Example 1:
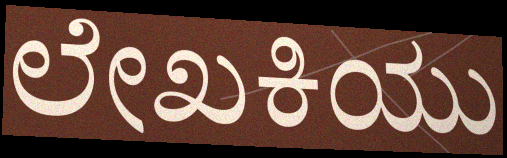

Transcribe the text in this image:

ಲೇಖಕಿಯು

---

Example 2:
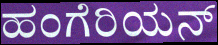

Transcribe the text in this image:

ಹಂಗೆರಿಯನ್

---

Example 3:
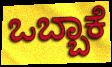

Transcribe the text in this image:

ಒಬ್ಬಾಕೆ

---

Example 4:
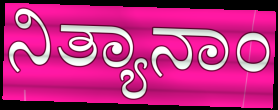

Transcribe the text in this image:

ನಿತ್ಯಾನಾಂ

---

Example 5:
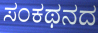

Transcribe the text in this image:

ಸಂಕಥನದ